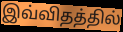
இவ்விதத்தில்